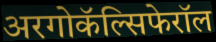
अरगोकॅल्सिफेरॉल